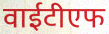
वाईटीएफ